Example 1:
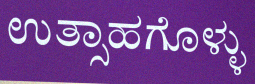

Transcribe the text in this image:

ಉತ್ಸಾಹಗೊಳ್ಳು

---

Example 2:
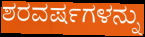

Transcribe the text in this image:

ಶರವರ್ಷಗಳನ್ನು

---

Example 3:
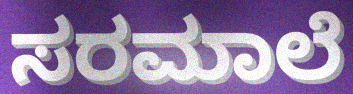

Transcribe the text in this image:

ಸರಮಾಲೆ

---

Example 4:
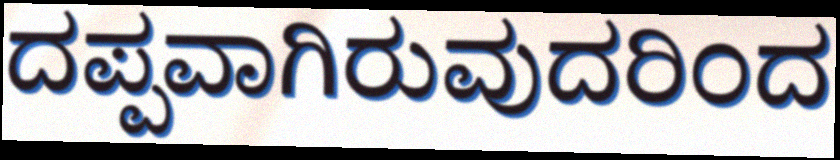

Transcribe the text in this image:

ದಪ್ಪವಾಗಿರುವುದರಿಂದ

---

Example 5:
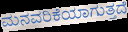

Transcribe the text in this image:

ಮನವರಿಕೆಯಾಗುತ್ತದೆ